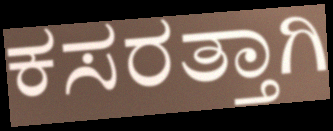
ಕಸರತ್ತಾಗಿ